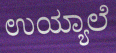
ಉಯ್ಯಾಲೆ